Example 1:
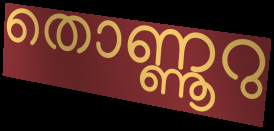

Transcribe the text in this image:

തൊണ്ണൂറു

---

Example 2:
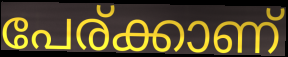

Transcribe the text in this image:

പേര്ക്കാണ്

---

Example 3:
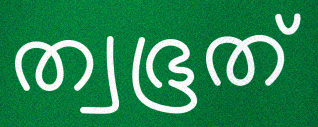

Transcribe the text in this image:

ത്വഭൂത്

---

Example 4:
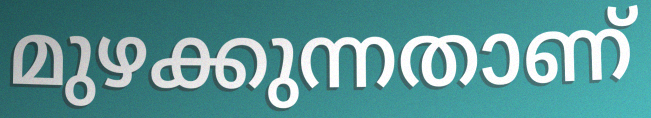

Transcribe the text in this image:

മുഴക്കുന്നതാണ്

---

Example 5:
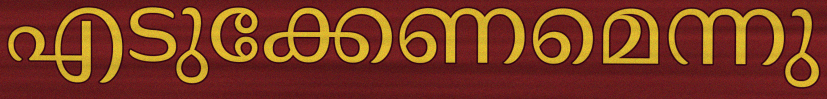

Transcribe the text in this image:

എടുക്കേണമെന്നു